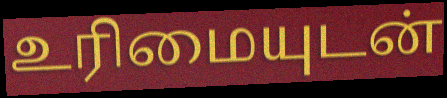
உரிமையுடன்